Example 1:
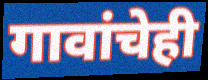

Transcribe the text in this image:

गावांचेही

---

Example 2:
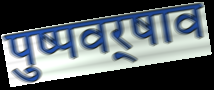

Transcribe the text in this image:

पुष्पवर्षाव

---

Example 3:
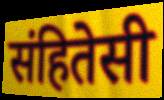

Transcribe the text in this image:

संहितेसी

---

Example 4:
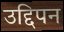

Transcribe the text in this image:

उद्दिपन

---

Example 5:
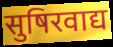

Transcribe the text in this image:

सुषिरवाद्य